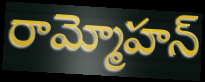
రామ్మోహన్